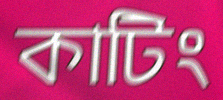
কাটিং